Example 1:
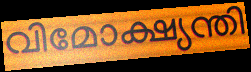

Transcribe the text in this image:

വിമോക്ഷ്യന്തി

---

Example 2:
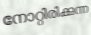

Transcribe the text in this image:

നോറ്റിരിക്കുന്ന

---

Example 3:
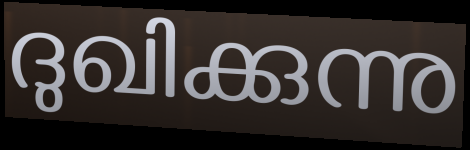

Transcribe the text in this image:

ദുഖിക്കുന്നു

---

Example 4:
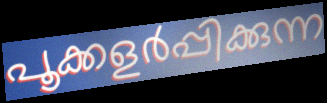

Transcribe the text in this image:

പൂക്കളർപ്പിക്കുന്ന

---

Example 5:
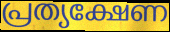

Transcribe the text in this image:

പ്രത്യക്ഷേണ